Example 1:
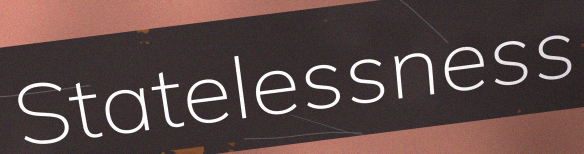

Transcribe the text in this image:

Statelessness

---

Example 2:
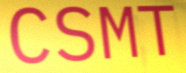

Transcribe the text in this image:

CSMT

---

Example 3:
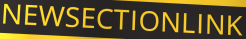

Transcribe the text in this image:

NEWSECTIONLINK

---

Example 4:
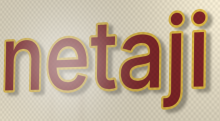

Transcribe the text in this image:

netaji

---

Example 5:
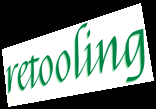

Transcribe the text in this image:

retooling